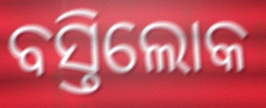
ବସ୍ତିଲୋକ